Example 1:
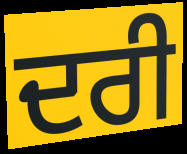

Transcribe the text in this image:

ਦਰੀ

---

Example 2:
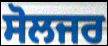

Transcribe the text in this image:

ਸੋਲਜਰ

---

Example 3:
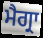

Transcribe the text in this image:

ਮੈਗ੍ਰਾ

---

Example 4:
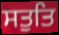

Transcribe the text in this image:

ਸਤੁਤਿ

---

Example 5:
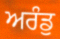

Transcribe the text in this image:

ਅਰੰਡੁ